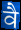
वै